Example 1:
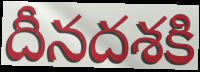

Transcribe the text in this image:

దీనదశకి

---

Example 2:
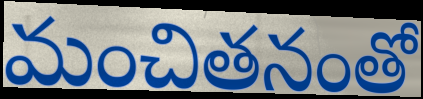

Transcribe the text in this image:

మంచితనంతో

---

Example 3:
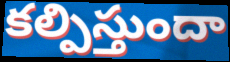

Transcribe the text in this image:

కల్పిస్తుందా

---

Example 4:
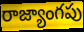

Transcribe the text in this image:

రాజ్యాంగపు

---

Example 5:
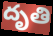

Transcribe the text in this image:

దృతి